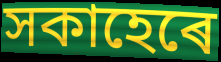
সকাহেৰে